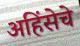
अहिंसेचे